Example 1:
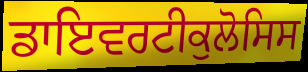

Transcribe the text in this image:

ਡਾਇਵਰਟੀਕੁਲੋਸਿਸ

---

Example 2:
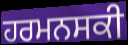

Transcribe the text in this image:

ਹਰਮਨਸਕੀ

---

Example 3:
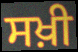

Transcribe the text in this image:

ਸਖ਼ੀ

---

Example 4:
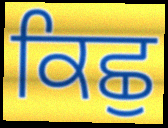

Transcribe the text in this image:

ਕਿਛੁ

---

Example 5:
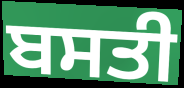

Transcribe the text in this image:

ਬਸਤੀ